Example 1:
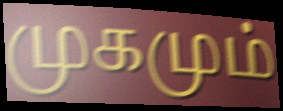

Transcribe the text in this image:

முகமும்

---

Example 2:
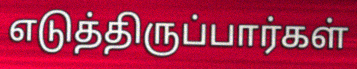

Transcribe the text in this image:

எடுத்திருப்பார்கள்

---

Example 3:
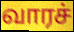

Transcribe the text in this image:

வாரச்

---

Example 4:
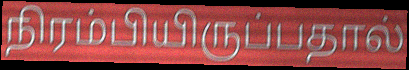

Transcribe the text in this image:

நிரம்பியிருப்பதால்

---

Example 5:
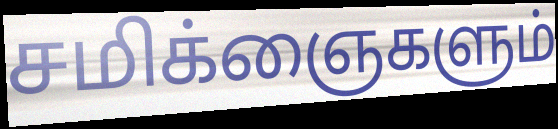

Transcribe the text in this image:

சமிக்ஞைகளும்